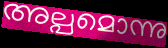
അല്പമൊന്നു